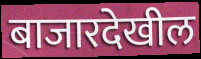
बाजारदेखील